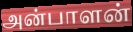
அன்பாளன்